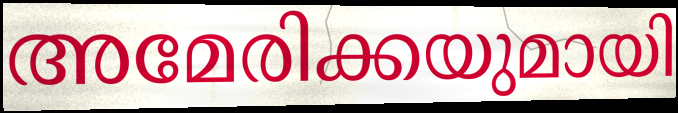
അമേരിക്കയുമായി